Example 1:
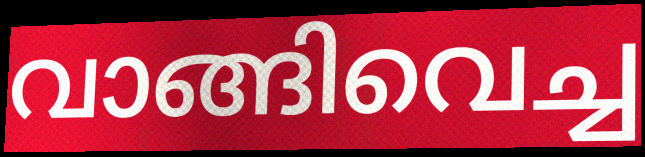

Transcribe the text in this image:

വാങ്ങിവെച്ച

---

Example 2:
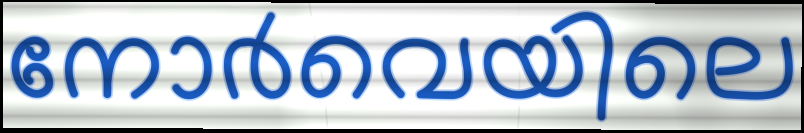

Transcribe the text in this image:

നോർവെയിലെ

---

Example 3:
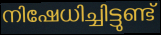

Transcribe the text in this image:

നിഷേധിച്ചിട്ടുണ്ട്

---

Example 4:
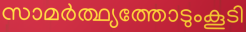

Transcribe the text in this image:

സാമർത്ഥ്യത്തോടുംകൂടി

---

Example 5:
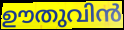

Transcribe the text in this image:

ഊതുവിൻ